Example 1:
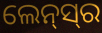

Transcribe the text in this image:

ଲେନ୍‌ସ୍‍ର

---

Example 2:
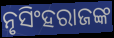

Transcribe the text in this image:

ନୃସିଂହରାଜଙ୍କ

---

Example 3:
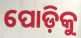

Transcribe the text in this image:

ପୋଡ଼ିକୁ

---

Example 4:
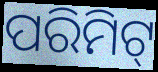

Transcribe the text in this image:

ପରିମିଟ୍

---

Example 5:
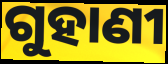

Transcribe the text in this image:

ଗୁହାଣୀ